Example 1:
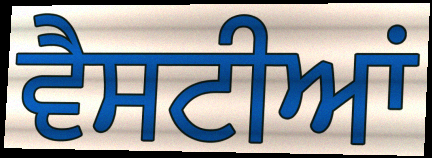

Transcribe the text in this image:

ਵੈਸਟੀਆਂ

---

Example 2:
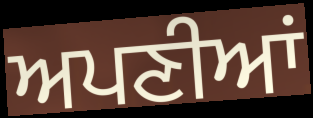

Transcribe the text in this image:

ਅਪਣੀਆਂ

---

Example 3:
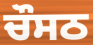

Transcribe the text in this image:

ਚੌਸਠ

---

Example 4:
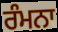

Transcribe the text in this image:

ਰੰਮਨਾ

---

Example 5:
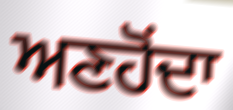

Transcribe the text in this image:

ਅਣਹੋਂਦਾ